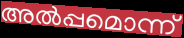
അൽപ്പമൊന്ന്